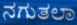
ನಗುತಲಾ